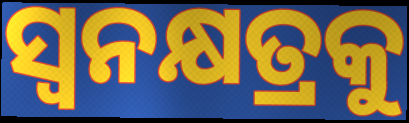
ସ୍ୱନକ୍ଷତ୍ରକୁ